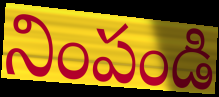
నింపండి